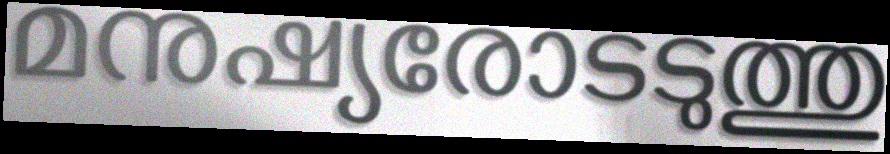
മനുഷ്യരോടടുത്തു